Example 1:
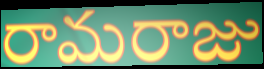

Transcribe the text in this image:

రామరాజు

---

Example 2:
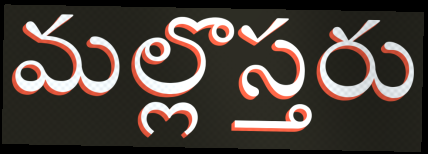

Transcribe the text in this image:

మల్లొస్తరు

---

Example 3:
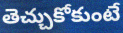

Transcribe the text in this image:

తెచ్చుకోకుంటే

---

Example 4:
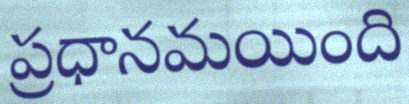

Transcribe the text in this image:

ప్రధానమయింది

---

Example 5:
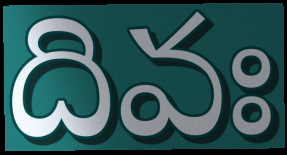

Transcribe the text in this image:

దివః